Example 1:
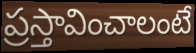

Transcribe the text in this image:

ప్రస్తావించాలంటే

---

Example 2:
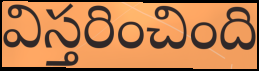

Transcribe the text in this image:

విస్తరించింది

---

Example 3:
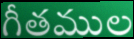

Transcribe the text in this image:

గీతముల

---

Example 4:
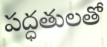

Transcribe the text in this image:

పద్ధతులతో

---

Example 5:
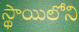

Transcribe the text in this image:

స్థాయిలోని